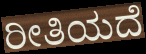
ರೀತಿಯದೆ